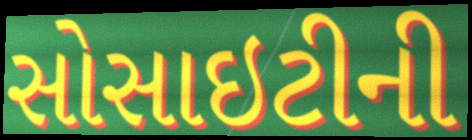
સોસાઇટીની